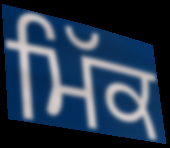
ਮਿੱਕ